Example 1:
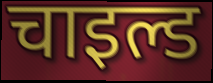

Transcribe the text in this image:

चाइल्ड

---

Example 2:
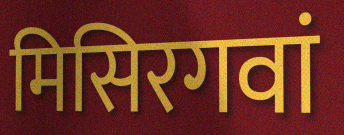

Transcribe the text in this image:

मिसिरगवां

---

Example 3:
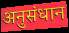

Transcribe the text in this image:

अनुसंधान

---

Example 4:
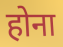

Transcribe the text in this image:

होना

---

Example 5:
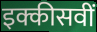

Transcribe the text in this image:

इक्कीसवीं